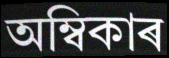
অম্বিকাৰ